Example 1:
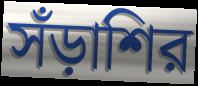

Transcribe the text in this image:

সঁড়াশির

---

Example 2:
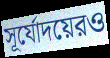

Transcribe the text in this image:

সূর্যোদয়েরও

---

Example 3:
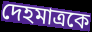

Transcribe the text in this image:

দেহমাত্রকে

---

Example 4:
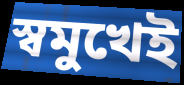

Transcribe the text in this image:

স্বমুখেই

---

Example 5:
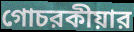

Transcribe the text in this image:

গোচরকীয়ার